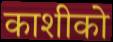
काशीको